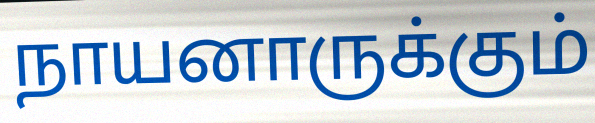
நாயனாருக்கும்